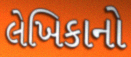
લેખિકાનો